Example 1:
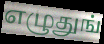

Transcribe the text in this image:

எழுதுங்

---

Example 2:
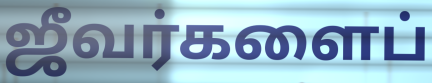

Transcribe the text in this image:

ஜீவர்களைப்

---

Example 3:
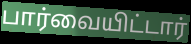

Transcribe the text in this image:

பார்வையிட்டார்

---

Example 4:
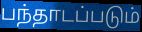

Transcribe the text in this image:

பந்தாடப்படும்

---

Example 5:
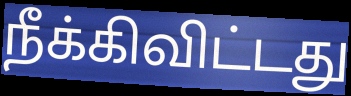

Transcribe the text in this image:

நீக்கிவிட்டது